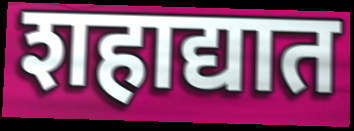
शहाद्यात